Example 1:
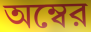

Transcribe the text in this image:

অম্বের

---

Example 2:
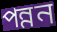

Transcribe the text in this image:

পন্নন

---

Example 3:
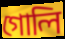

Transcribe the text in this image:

গোলি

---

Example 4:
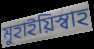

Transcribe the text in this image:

মুহাইয়িস্বাহ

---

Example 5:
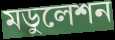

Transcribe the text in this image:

মডুলেশন